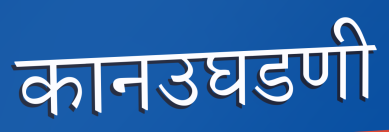
कानउघडणी